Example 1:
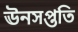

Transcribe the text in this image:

ঊনসপ্ততি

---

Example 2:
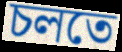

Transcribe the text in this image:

চলতে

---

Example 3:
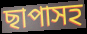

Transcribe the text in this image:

ছাপাসহ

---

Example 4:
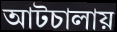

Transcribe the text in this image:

আটচালায়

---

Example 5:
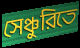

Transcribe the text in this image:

সেঞ্চুরিতে